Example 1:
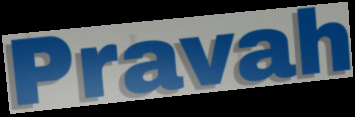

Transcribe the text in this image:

Pravah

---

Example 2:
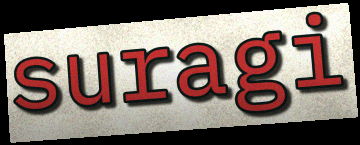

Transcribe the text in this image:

suragi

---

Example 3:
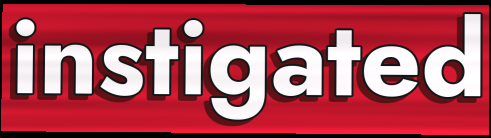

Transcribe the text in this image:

instigated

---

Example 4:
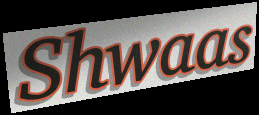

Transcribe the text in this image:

Shwaas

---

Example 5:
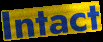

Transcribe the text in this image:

Intact